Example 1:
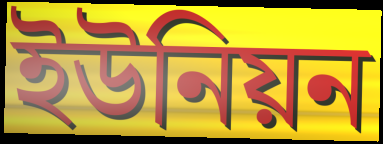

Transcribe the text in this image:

ইউনিয়ন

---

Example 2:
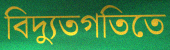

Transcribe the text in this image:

বিদ্যুতগতিতে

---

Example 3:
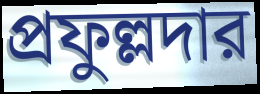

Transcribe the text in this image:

প্রফুল্লদার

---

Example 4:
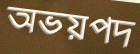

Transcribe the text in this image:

অভয়পদ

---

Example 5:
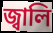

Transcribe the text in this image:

জ্বালি